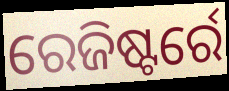
ରେଜିଷ୍ଟର୍ରେ